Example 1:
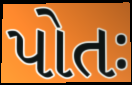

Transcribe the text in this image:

પોતઃ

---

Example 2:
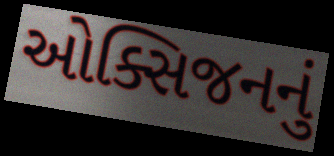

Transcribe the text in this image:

ઓક્સિજનનું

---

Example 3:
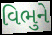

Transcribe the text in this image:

વિભુને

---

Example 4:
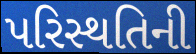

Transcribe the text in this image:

પરિસ્થતિની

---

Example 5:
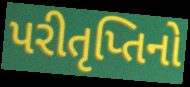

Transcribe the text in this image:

પરીતૃપ્તિનો